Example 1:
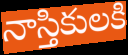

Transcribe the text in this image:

నాస్తికులకి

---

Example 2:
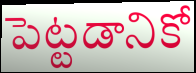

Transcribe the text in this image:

పెట్టడానికో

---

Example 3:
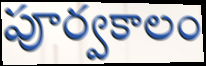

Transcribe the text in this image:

పూర్వకాలం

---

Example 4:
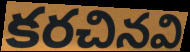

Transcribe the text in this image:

కరచినవి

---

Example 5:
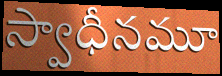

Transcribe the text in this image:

స్వాధీనమూ